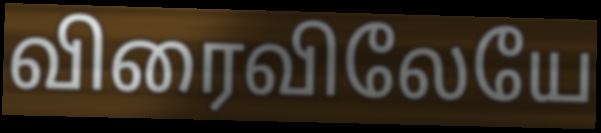
விரைவிலேயே